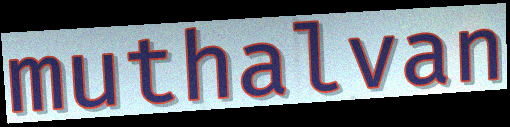
muthalvan